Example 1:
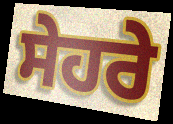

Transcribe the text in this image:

ਸੇਹਰੇ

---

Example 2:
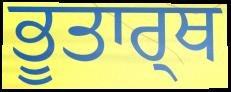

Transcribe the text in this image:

ਭੂਤਾਰ੍ਥ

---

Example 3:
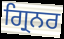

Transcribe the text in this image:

ਗ੍ਰਿਨਰ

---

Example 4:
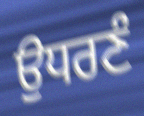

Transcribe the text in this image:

ਉਧਰਣੰ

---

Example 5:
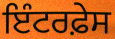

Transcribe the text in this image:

ਇੰਟਰਫ਼ੇਸ